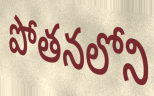
పోతనలోని